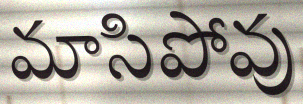
మాసిపోవు